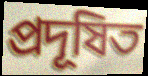
প্ৰদূষিত